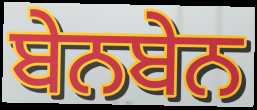
ਬੇਨਬੇਨ